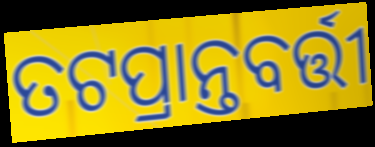
ତଟପ୍ରାନ୍ତବର୍ତ୍ତୀ